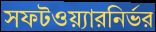
সফটওয়্যারনির্ভর